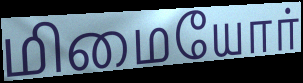
மிமையோர்